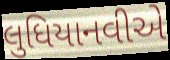
લુધિયાનવીએ